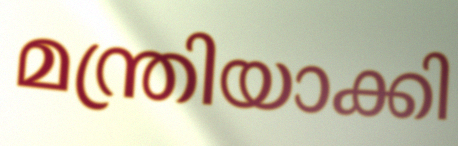
മന്ത്രിയാക്കി